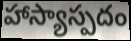
హాస్యాస్పదం